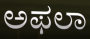
ಅಫಲಾ